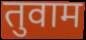
तुवाम